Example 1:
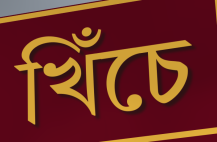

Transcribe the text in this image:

খিঁচে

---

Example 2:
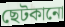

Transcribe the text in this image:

ছেটকানো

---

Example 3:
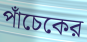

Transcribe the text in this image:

পাঁচেকের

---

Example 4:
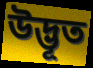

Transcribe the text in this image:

উদ্ভূত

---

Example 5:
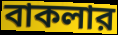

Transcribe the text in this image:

বাকলার